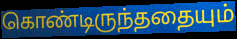
கொண்டிருந்ததையும்